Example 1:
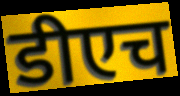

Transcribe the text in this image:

डीएच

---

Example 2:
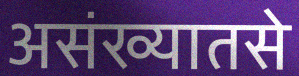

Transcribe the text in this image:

असंख्यातसे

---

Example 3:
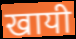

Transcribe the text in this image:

खायी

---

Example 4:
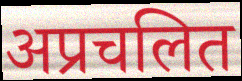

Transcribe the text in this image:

अप्रचलित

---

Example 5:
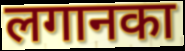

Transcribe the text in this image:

लगानका